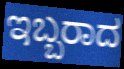
ಇಬ್ಬರಾದ